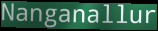
Nanganallur